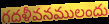
గదళీవనములందు